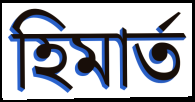
হিমার্ত